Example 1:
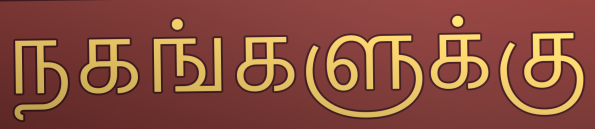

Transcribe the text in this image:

நகங்களுக்கு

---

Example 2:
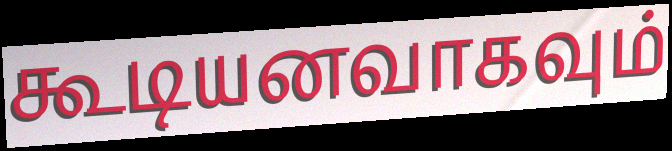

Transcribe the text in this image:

கூடியனவாகவும்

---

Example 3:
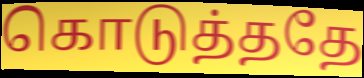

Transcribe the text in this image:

கொடுத்ததே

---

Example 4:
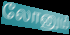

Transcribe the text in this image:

லோனும்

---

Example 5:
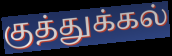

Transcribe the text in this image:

குத்துக்கல்